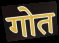
गोत